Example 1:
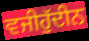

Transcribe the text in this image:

ਵਜੀਹੁੱਦੀਨ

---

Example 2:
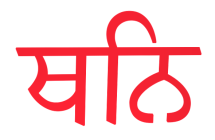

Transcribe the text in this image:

ਥਨਿ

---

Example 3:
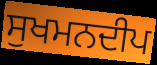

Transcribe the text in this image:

ਸੁਖਮਨਦੀਪ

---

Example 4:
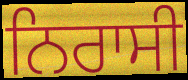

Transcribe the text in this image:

ਨਿਰਾਸੀ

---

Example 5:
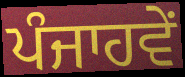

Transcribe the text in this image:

ਪੰਜਾਹਵੇਂ